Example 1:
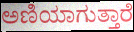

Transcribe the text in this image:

ಅಣಿಯಾಗುತ್ತಾರೆ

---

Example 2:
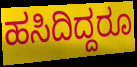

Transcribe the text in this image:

ಹಸಿದಿದ್ದರೂ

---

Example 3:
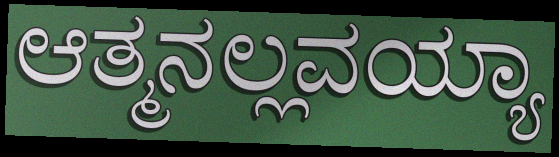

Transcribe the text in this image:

ಆತ್ಮನಲ್ಲವಯ್ಯಾ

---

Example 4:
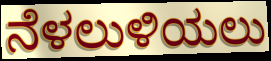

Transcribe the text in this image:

ನೆಳಲುಳಿಯಲು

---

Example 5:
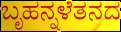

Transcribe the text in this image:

ಬೃಹನ್ನಳೆತನದ